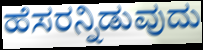
ಹೆಸರನ್ನಿಡುವುದು